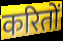
करितों